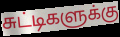
சுட்டிகளுக்கு